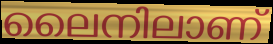
ലൈനിലാണ്